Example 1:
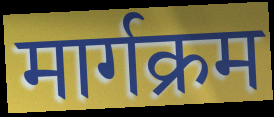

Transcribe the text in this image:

मार्गक्रम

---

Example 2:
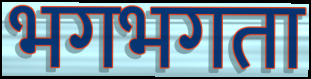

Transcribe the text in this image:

भगभगता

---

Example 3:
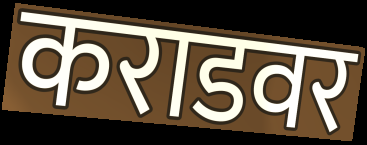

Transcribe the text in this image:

कराडवर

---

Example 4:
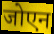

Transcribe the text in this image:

जोएन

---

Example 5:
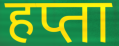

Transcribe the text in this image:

हप्ता